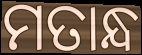
ମତାନ୍ଧ